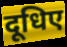
दूधिए